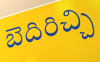
బెదిరిచ్చి